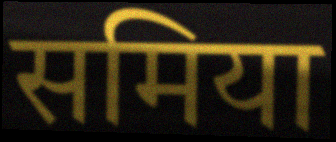
समिया